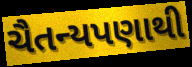
ચૈતન્યપણાથી